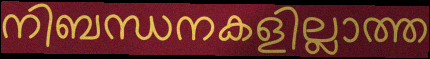
നിബന്ധനകളില്ലാത്ത